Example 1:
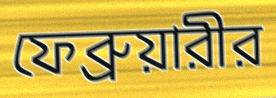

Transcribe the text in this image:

ফেব্রুয়ারীর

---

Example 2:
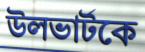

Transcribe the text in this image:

উলভার্টকে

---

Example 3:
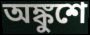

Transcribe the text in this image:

অঙ্কুশে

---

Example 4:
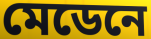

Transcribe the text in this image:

মেডেনে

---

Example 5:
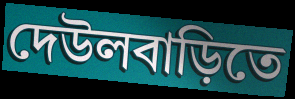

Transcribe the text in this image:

দেউলবাড়িতে